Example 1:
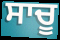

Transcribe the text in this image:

ਸਾਚੂ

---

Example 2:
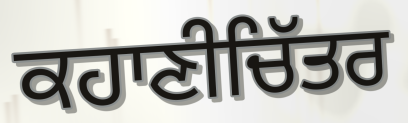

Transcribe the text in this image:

ਕਹਾਣੀਚਿੱਤਰ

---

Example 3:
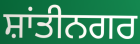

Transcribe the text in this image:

ਸ਼ਾਂਤੀਨਗਰ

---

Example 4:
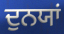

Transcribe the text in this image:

ਦੁਨਯਾਂ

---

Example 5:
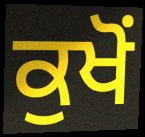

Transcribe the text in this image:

ਕੁਖੋਂ